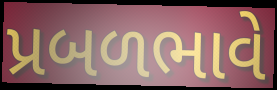
પ્રબળભાવે